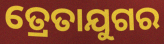
ତ୍ରେତାଯୁଗର